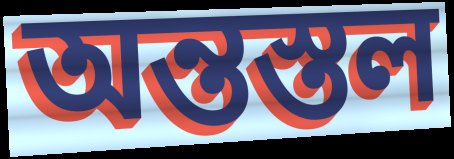
অন্তস্তল